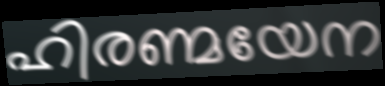
ഹിരണ്മയേന